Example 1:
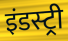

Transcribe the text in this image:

इंडस्‍ट्री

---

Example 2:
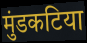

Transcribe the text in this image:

मुंडकटिया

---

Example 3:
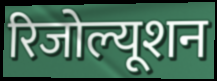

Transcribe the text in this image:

रिजोल्‍यूशन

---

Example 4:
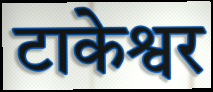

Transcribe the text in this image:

टाकेश्वर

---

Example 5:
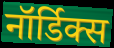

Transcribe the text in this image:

नॉर्डिक्स